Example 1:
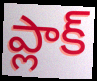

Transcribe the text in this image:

ప్లాక్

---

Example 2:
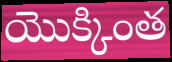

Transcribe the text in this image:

యొక్కింత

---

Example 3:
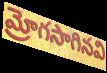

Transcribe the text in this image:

మ్రోగసాగినవి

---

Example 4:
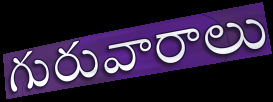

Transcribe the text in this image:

గురువారాలు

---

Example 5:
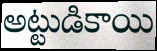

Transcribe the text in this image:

అట్టుడికాయి